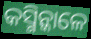
କସ୍ମିନ୍କାଳେ